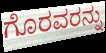
ಗೊರವರನ್ನು